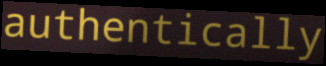
authentically